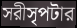
সরীসৃপটার